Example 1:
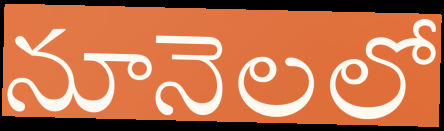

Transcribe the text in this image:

నూనెలలో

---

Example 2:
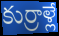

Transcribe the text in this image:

కుర్రాళ్లే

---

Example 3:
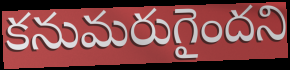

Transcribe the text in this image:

కనుమరుగైందని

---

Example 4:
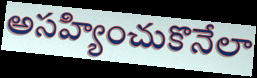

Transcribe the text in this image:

అసహ్యించుకొనేలా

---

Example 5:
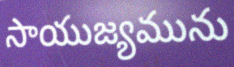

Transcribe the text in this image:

సాయుజ్యమును